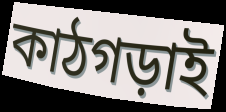
কাঠগড়াই